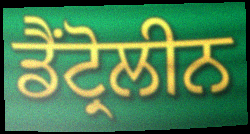
ਡੈਂਟ੍ਰੋਲੀਨ